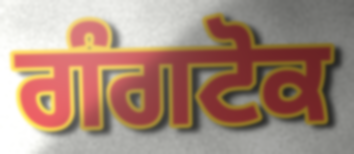
ਗੰਗਟੋਕ